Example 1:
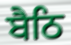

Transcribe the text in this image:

ਬੈਠਿ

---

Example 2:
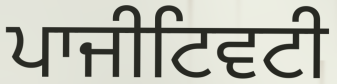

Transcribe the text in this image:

ਪਾਜੀਟਿਵਟੀ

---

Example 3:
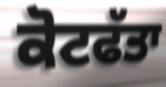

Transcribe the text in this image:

ਕੋਟਫੱਤਾ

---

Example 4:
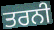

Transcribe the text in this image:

ਤਰਨੀ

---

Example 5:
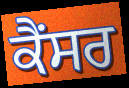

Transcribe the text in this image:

ਕੈੰਸਰ